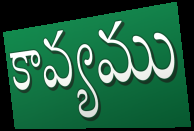
కావ్యము